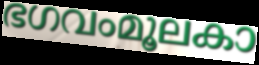
ഭഗവംമൂലകാ